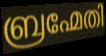
ബ്രഹ്മേതി